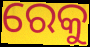
ରେକୁ